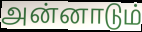
அன்னாடும்